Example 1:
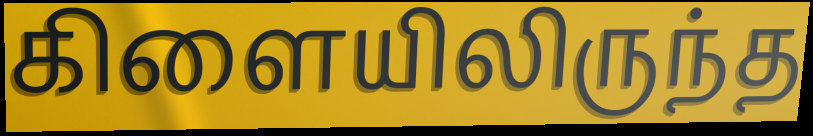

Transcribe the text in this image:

கிளையிலிருந்த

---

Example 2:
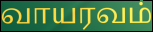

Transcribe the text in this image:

வாயரவம்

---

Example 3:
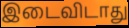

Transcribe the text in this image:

இடைவிடாது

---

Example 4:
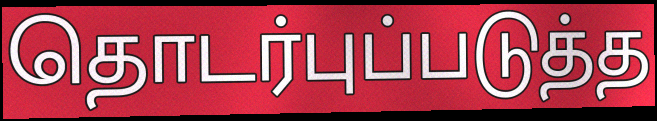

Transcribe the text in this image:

தொடர்புப்படுத்த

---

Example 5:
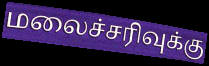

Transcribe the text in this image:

மலைச்சரிவுக்கு